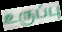
உருப்பு